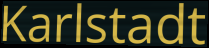
Karlstadt